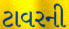
ટાવરની